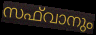
സഫ്‌വാനും